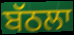
ਬੱਠਲਾ